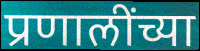
प्रणालींच्या